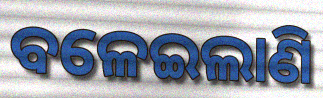
ବଳେଇଲାଣି